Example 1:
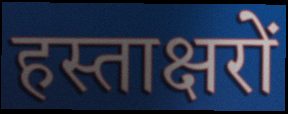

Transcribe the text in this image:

हस्ताक्षरों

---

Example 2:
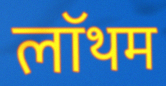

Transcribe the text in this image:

लॉथम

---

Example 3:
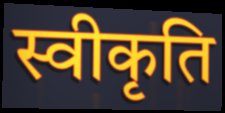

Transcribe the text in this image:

स्वीकृति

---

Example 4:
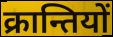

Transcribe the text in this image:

क्रान्तियों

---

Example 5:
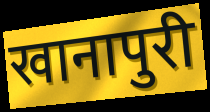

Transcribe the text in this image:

खानापुरी